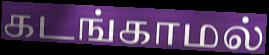
கடங்காமல்